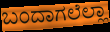
ಬಂದಾಗಲೆಲ್ಲಾ